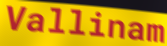
Vallinam